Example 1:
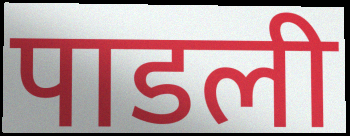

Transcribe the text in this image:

पाडली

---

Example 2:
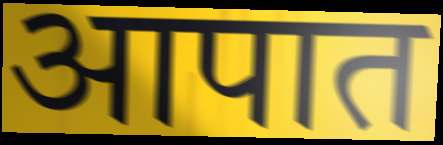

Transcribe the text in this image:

आपात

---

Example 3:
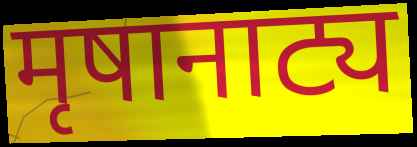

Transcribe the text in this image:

मृषानाट्य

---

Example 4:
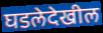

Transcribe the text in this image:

घडलेदेखील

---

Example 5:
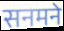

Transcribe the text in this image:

सनमने